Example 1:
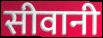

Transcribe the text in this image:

सीवानी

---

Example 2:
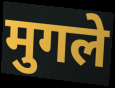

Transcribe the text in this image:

मुगले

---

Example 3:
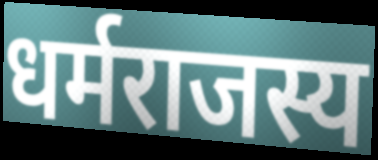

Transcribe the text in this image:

धर्मराजस्य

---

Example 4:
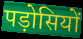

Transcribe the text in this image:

पड़ोसियों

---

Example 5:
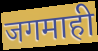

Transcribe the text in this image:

जगमाही